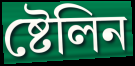
ষ্টেলিন